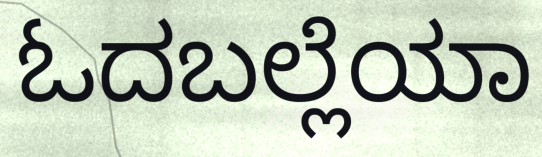
ಓದಬಲ್ಲೆಯಾ